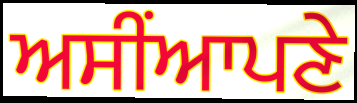
ਅਸੀਂਆਪਣੇ